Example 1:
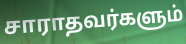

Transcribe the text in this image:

சாராதவர்களும்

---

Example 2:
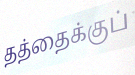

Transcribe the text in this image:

தத்தைக்குப்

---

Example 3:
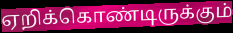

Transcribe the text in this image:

ஏறிக்கொண்டிருக்கும்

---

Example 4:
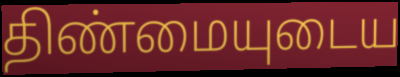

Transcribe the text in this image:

திண்மையுடைய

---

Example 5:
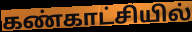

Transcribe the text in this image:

கண்காட்சியில்